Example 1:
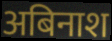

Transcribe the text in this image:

अबिनाश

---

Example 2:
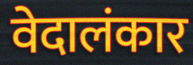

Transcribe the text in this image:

वेदालंकार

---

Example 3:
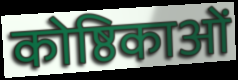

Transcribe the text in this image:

कोष्ठिकाओं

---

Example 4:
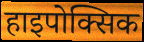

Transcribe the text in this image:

हाइपोक्सिक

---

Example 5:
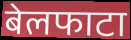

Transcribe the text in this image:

बेलफाटा